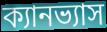
ক্যানভ্যাস